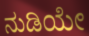
ನುಡಿಯೇ